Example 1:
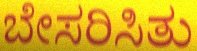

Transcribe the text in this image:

ಬೇಸರಿಸಿತು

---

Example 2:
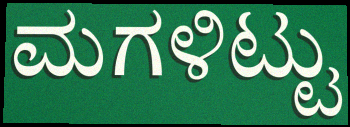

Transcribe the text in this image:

ಮಗಳಿಟ್ಟು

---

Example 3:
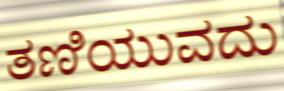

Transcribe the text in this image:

ತಣಿಯುವದು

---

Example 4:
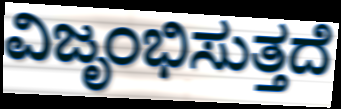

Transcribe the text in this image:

ವಿಜೃಂಭಿಸುತ್ತದೆ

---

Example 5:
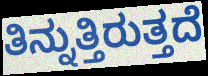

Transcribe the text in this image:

ತಿನ್ನುತ್ತಿರುತ್ತದೆ